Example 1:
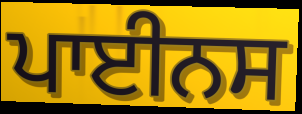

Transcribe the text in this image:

ਪਾਈਨਸ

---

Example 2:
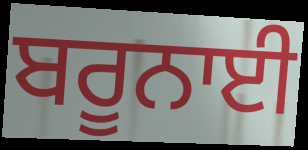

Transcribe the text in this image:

ਬਰੂਨਾਈ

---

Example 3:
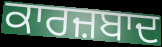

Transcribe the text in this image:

ਕਾਰਜ਼ਬਾਦ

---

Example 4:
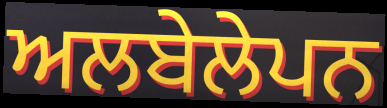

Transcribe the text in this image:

ਅਲਬੇਲੇਪਨ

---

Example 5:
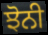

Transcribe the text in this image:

ਝੋਨੀ